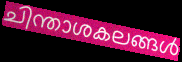
ചിന്താശകലങ്ങൾ